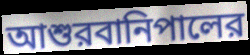
আশুরবানিপালের